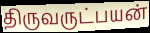
திருவருட்பயன்